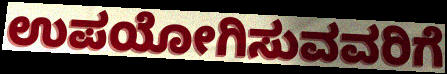
ಉಪಯೋಗಿಸುವವರಿಗೆ